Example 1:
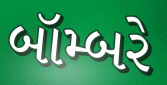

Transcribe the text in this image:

બૉમ્બરે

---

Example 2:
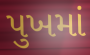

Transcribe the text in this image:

પુખમાં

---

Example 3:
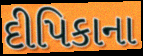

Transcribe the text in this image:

દીપિકાના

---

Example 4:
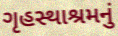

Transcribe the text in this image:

ગૃહસ્થાશ્રમનું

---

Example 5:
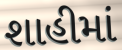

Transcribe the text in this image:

શાહીમાં